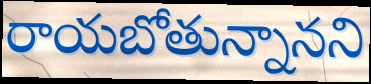
రాయబోతున్నానని